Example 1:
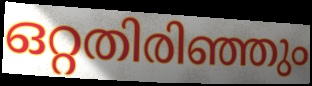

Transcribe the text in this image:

ഒറ്റതിരിഞ്ഞും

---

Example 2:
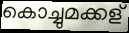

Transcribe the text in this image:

കൊച്ചുമക്കള്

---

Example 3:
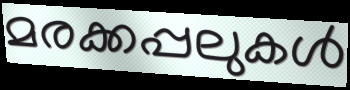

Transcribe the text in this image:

മരക്കപ്പലുകൾ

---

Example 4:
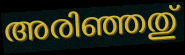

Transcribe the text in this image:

അരിഞ്ഞതു്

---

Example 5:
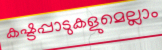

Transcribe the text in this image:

കഷ്ടപ്പാടുകളുമെല്ലാം